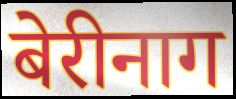
बेरीनाग